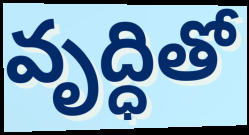
వృద్ధితో